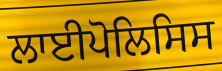
ਲਾਈਪੋਲਿਸਿਸ